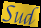
Sud